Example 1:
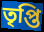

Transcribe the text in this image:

তৃপ্তি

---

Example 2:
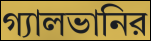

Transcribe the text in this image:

গ্যালভানির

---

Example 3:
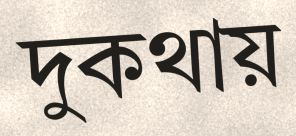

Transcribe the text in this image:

দুকথায়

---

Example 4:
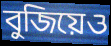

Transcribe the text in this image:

বুজিয়েও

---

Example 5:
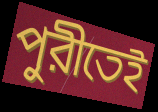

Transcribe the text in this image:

পুরীতেই